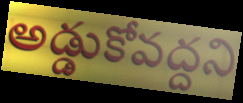
అడ్డుకోవద్దని